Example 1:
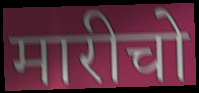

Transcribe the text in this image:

मारीचो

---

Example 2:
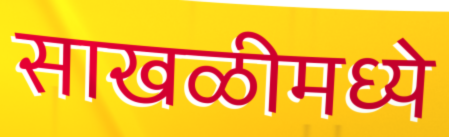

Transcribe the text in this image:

साखळीमध्ये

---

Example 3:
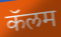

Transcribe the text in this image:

कॅलम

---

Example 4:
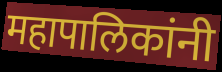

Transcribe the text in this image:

महापालिकांनी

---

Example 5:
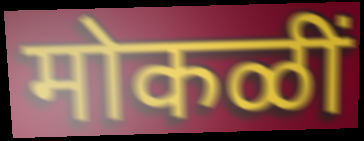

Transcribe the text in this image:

मोकळीं